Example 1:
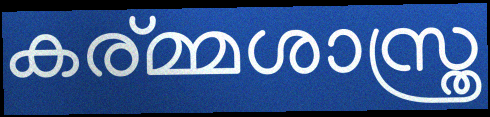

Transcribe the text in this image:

കര്മ്മശാസ്ത്ര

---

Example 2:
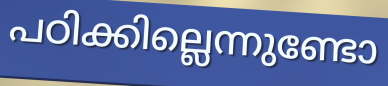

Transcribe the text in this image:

പഠിക്കില്ലെന്നുണ്ടോ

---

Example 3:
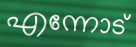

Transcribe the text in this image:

എന്നോട്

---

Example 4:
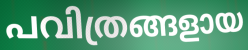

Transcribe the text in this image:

പവിത്രങ്ങളായ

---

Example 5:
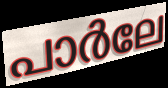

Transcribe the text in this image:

പാർലേ